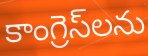
కాంగ్రెస్‌లను